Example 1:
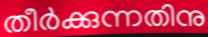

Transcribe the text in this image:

തീർക്കുന്നതിനു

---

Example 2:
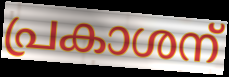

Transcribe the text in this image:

പ്രകാശന്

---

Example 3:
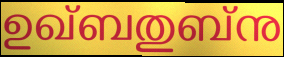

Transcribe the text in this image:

ഉഖ്ബതുബ്നു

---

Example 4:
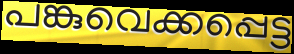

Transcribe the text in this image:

പങ്കുവെക്കപ്പെട്ട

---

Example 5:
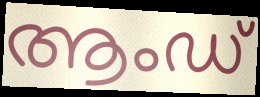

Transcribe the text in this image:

ആംഡ്